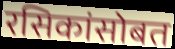
रसिकांसोबत